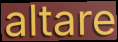
altare